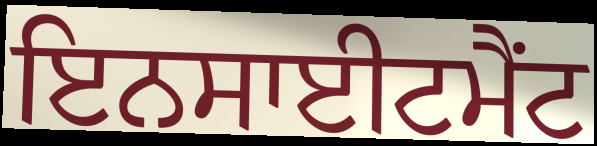
ਇਨਸਾਈਟਮੈਂਟ